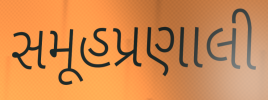
સમૂહપ્રણાલી